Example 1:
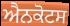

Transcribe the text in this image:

ਐਨਕੋਟਸ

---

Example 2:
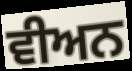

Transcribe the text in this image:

ਵੀਅਨ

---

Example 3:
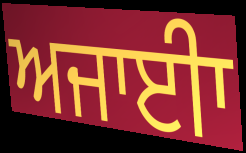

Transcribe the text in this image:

ਅਜਾਈਾ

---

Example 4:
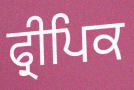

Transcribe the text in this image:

ਫ੍ਰੀਪਿਕ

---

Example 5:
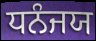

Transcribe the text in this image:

ਧਨੰਜਯ